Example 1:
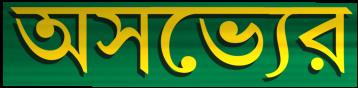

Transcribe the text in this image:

অসভ্যের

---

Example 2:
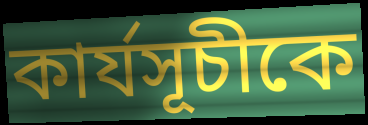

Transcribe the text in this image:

কার্যসূচীকে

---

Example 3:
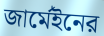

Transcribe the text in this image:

জার্মেইনের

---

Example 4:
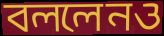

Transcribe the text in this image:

বললেনও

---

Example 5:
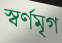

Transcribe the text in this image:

স্বর্ণমৃগ